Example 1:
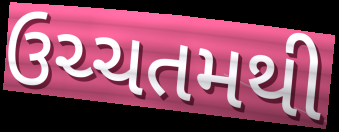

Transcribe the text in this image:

ઉચ્ચતમથી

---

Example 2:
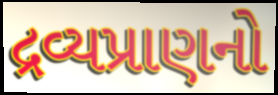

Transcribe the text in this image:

દ્રવ્યપ્રાણનો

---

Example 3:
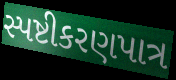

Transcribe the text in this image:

સ્પષ્ટીકરણપાત્ર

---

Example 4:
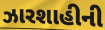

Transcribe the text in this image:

ઝારશાહીની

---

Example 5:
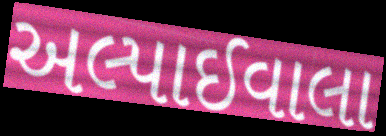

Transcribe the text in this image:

અલ્પાઈવાલા